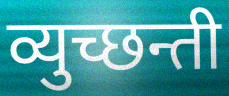
व्युच्छन्ती